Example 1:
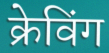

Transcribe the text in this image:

क्रेविंग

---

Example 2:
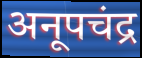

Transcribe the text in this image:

अनूपचंद्र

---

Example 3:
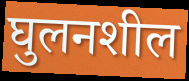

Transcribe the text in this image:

घुलनशील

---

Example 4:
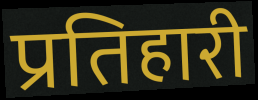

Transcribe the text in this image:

प्रतिहारी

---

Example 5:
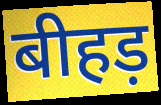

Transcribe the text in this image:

बीहड़